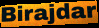
Birajdar